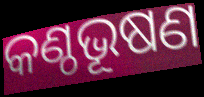
କଣ୍ଠଭୂଷଣ